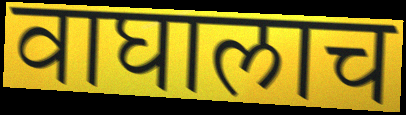
वाघालाच